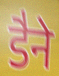
डैने